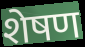
शेषण